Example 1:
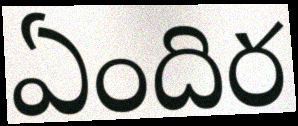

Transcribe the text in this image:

ఏందిర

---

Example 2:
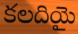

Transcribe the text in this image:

కలదియై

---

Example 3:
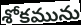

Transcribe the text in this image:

శోకమును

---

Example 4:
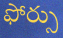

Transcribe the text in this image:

ఫోర్సు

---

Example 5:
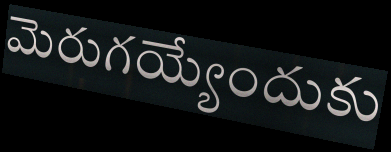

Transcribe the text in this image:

మెరుగయ్యేందుకు